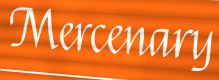
Mercenary